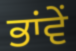
ਭਾਂਵੇਂ